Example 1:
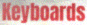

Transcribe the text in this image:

Keyboards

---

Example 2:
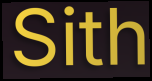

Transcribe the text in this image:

Sith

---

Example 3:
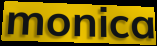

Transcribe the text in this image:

monica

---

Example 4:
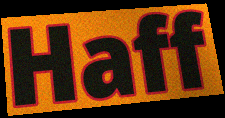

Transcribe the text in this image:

Haff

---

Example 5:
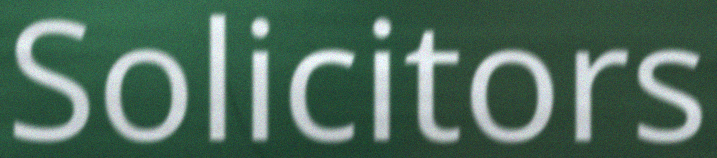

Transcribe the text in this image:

Solicitors